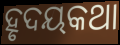
ହୃଦୟକଥା